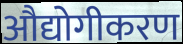
औद्योगीकरण